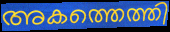
അകത്തെത്തി